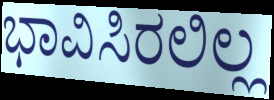
ಭಾವಿಸಿರಲಿಲ್ಲ